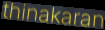
thinakaran